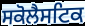
ਸਕੋਲੈਸਟਿਕ